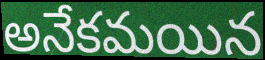
అనేకమయిన